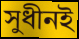
সুধীনই